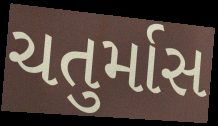
ચતુર્માસ